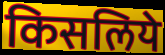
किसलिये